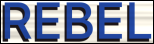
REBEL